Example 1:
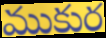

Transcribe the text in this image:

ముకుర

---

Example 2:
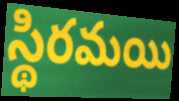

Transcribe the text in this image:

స్థిరమయి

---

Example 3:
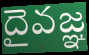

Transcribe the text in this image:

దైవజ్ఞ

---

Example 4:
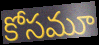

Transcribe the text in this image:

కోసమూ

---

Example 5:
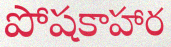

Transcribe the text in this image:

పోషకాహార